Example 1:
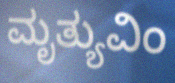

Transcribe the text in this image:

ಮೃತ್ಯುವಿಂ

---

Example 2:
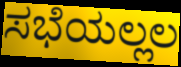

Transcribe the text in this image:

ಸಭೆಯಲ್ಲಲ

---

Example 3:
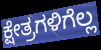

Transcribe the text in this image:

ಕ್ಷೇತ್ರಗಳಿಗೆಲ್ಲ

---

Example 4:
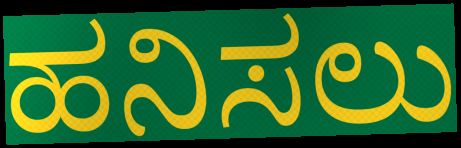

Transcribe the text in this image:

ಹನಿಸಲು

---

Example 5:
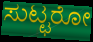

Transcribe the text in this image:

ಸುಟ್ಟರೋ